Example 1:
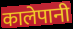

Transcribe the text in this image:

कालेपानी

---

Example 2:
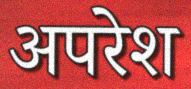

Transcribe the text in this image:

अपरेश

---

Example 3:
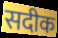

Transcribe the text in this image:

सदीक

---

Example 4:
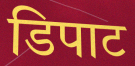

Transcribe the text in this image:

डिपाट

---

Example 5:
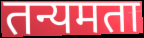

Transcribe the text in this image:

तन्यमता